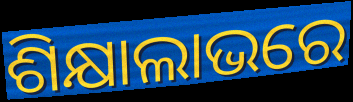
ଶିକ୍ଷାଲାଭରେ